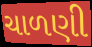
ચાળણી